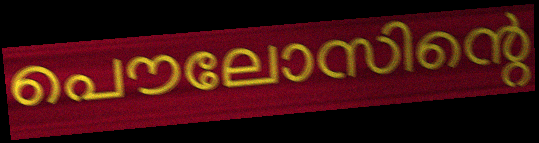
പൌലോസിന്റെ